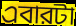
এবারটা